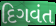
દિગવંત